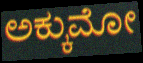
ಅಕ್ಕುಮೋ